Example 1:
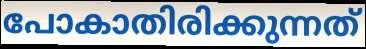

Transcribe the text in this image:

പോകാതിരിക്കുന്നത്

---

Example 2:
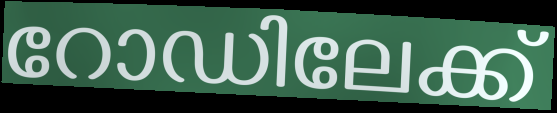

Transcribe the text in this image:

റോഡിലേക്ക്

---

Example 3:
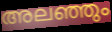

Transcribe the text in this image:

അലഞ്ഞും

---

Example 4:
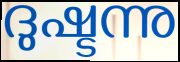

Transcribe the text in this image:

ദുഷ്ടന്നു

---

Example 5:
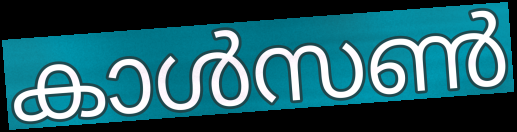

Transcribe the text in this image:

കാൾസൺ